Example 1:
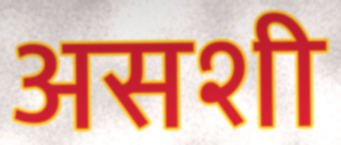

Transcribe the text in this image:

असशी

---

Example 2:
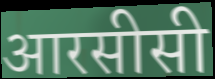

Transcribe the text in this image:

आरसीसी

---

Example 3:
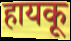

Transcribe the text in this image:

हायकू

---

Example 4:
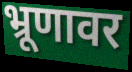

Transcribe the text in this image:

भ्रूणावर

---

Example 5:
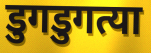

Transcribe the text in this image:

डुगडुगत्या